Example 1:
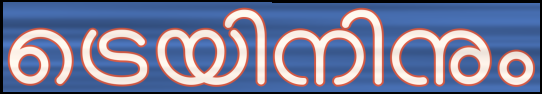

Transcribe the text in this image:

ട്രെയിനിനും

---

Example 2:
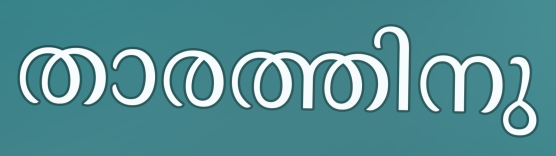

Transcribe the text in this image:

താരത്തിനു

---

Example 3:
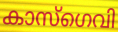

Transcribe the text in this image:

കാസ്ഗെവി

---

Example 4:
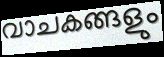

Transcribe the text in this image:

വാചകങ്ങളും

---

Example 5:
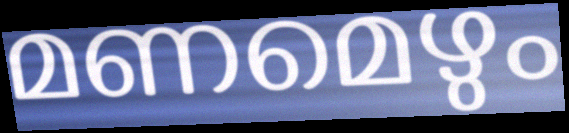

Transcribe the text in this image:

മണമെഴും